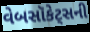
વેબસૉકેટ્સની